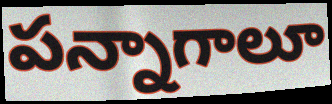
పన్నాగాలూ